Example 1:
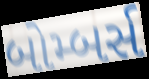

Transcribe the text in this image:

બોમ્બર્સ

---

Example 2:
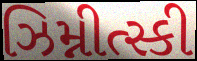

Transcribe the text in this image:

ઝિમ્નીત્સ્કી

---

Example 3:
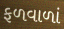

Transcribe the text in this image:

ફળવાળાં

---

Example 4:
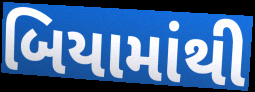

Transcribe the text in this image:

બિયામાંથી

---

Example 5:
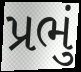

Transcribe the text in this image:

પ્રભું